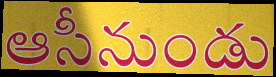
ఆసీనుండు